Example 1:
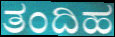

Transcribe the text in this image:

ತಂದಿಹ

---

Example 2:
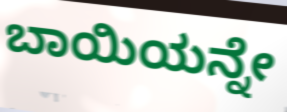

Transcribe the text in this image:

ಬಾಯಿಯನ್ನೇ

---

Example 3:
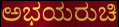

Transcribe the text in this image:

ಅಭಯರುಚಿ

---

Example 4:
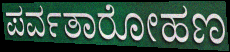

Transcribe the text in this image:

ಪರ್ವತಾರೋಹಣ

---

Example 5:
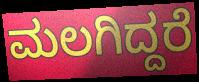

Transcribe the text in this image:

ಮಲಗಿದ್ದರೆ